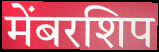
मेंबरशिप